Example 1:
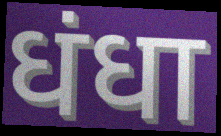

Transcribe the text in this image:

धंधा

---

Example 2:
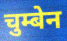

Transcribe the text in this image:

चुम्बेन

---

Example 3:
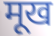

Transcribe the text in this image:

मूख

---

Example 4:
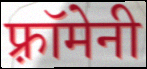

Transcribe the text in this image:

फ़्रॉमेनी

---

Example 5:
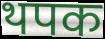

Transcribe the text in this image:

थपक